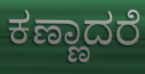
ಕಣ್ಣಾದರೆ